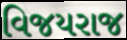
વિજયરાજ